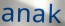
anak